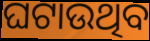
ଘଟାଉଥିବ